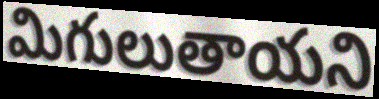
మిగులుతాయని